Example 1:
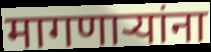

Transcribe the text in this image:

मागणार्‍यांना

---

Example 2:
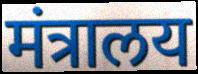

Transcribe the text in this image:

मंत्रालय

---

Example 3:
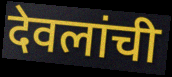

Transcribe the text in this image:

देवलांची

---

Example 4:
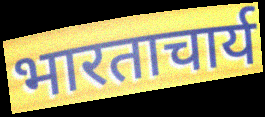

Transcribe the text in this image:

भारताचार्य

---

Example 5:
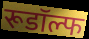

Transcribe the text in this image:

रूडॉल्फ